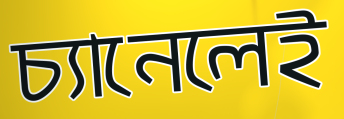
চ্যানেলেই